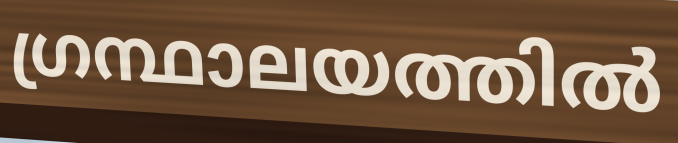
ഗ്രന്ഥാലയത്തിൽ